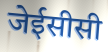
जेईसीसी